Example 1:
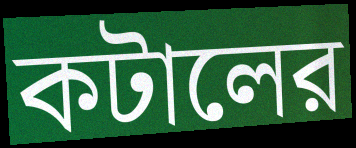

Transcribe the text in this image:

কটালের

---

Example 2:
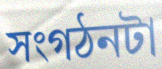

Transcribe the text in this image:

সংগঠনটা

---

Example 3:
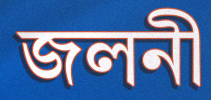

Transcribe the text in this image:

জলনী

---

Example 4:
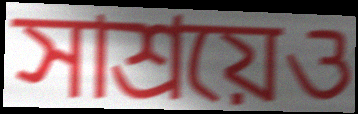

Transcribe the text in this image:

সাশ্রয়েও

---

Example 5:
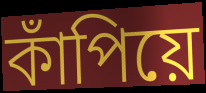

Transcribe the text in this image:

কাঁপিয়ে